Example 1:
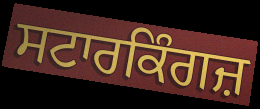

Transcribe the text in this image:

ਸਟਾਰਕਿੰਗਜ਼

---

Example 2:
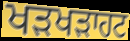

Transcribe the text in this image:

ਖੜਖੜਾਹਟ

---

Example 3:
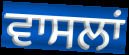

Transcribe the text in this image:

ਵਾਸਲਾਂ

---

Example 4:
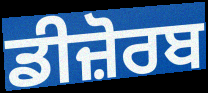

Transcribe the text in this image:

ਡੀਜ਼ੋਰਬ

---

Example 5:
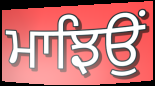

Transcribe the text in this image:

ਮਾਝਿਉਂ